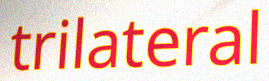
trilateral